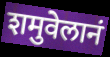
शमुवेलानं